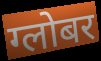
ग्लोबर